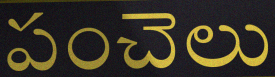
పంచెలు